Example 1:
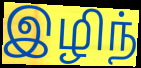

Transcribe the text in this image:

இழிந்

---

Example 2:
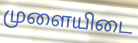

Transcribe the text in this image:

முளையிடை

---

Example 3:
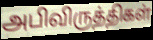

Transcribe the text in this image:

அபிவிருத்திகள்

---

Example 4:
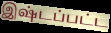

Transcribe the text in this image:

இஷ்டப்பட்ட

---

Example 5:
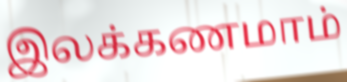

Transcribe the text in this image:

இலக்கணமாம்